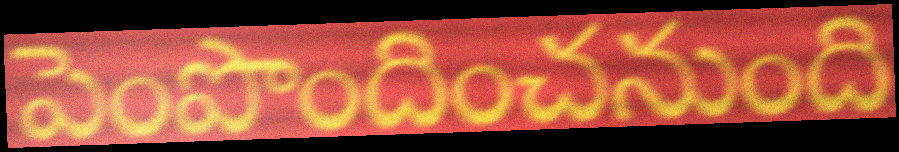
పెంపొందించనుంది